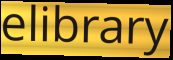
elibrary